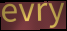
evry